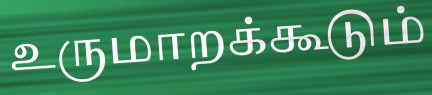
உருமாறக்கூடும்